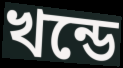
খন্ডে